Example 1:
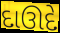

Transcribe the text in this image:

દાઊદે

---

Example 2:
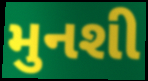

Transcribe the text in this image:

મુનશી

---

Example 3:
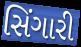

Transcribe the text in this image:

સિંગારી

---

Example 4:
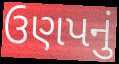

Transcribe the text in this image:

ઉણપનું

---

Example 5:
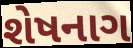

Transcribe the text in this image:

શેષનાગ